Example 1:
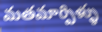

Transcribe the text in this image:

మతమార్పిళ్ళు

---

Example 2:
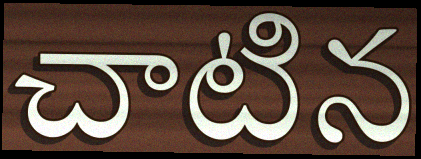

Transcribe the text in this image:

చాటిన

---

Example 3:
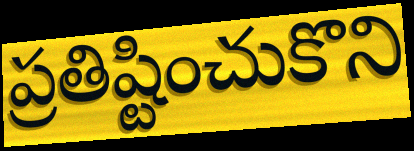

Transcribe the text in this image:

ప్రతిష్టించుకొని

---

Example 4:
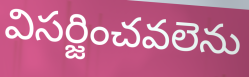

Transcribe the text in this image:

విసర్జించవలెను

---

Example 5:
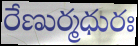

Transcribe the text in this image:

రేణుర్మధురః